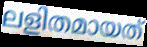
ലളിതമായത്